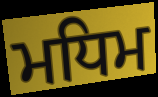
ਮਧਿਮ